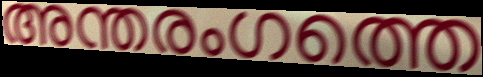
അന്തരംഗത്തെ